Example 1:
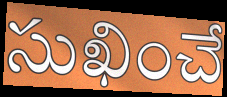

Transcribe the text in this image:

సుఖించే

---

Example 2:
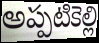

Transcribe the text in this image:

అప్పటికెల్లి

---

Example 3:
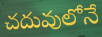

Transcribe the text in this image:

చదువులోనే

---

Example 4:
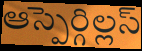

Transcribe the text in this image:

ఆస్పెర్గిల్లస్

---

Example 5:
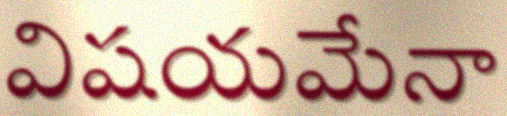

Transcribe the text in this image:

విషయమేనా